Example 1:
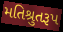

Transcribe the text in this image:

મતિશ્રુતરૂપ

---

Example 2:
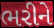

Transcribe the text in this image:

ભરીને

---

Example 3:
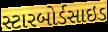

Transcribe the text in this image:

સ્ટારબોર્ડસાઇડ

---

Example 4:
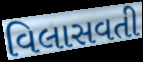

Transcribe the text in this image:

વિલાસવતી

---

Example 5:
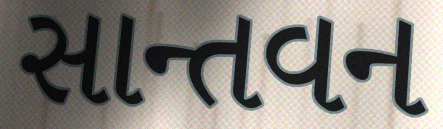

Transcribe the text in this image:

સાન્તવન